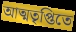
আত্মতৃপ্তিতে